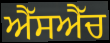
ਐੱਸਐੱਚ